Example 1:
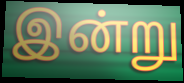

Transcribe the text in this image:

இன்று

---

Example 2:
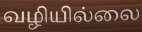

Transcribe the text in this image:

வழியில்லை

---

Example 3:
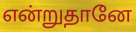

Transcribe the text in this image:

என்றுதானே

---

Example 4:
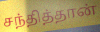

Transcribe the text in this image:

சந்தித்தான்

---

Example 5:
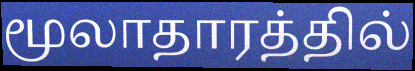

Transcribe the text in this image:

மூலாதாரத்தில்